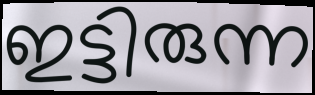
ഇട്ടിരുന്ന